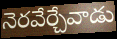
నెరవేర్చేవాడు